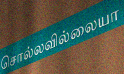
சொல்லவில்லையா